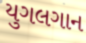
યુગલગાન